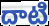
దాటి